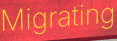
Migrating